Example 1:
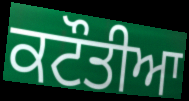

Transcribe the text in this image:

ਕਟੌਤੀਆ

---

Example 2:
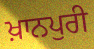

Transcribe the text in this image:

ਖ਼ਾਨਪੁਰੀ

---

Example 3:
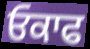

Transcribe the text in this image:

ਓਕਾਫ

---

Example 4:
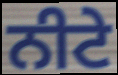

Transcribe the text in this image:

ਨੀਟੇ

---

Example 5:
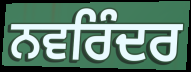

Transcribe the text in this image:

ਨਵਰਿੰਦਰ